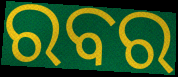
ରବର